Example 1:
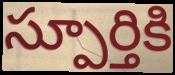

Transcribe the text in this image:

స్పూర్తికి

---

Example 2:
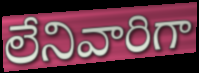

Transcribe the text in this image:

లేనివారిగా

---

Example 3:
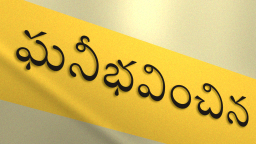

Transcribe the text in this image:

ఘనీభవించిన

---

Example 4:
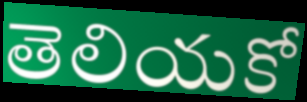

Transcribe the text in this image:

తెలియకో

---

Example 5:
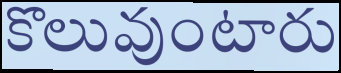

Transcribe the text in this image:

కొలువుంటారు